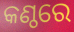
କଣ୍ଠରେ